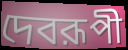
দেবরূপী